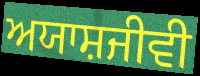
ਅਯਾਸ਼ਜੀਵੀ